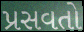
પ્રસવતો